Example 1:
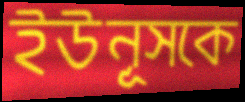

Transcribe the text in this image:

ইউনূসকে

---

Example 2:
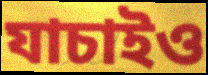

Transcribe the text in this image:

যাচাইও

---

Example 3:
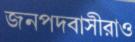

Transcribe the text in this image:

জনপদবাসীরাও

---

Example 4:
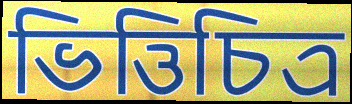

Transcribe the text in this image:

ভিত্তিচিত্র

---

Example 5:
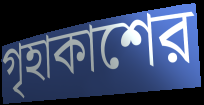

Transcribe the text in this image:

গৃহাকাশের